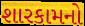
શારકામનો